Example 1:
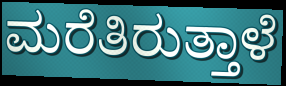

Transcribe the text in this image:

ಮರೆತಿರುತ್ತಾಳೆ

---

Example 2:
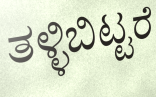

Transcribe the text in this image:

ತಳ್ಳಿಬಿಟ್ಟರೆ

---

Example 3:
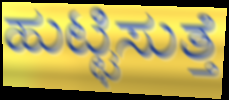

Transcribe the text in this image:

ಹುಟ್ಟಿಸುತ್ತೆ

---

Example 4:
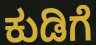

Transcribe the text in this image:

ಕುಡಿಗೆ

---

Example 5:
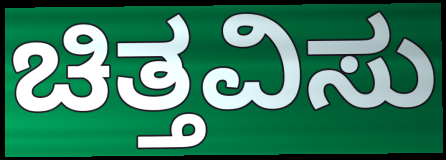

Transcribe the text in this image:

ಚಿತ್ತವಿಸು